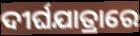
ଦୀର୍ଘଯାତ୍ରାରେ